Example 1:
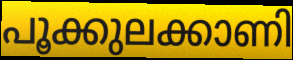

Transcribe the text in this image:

പൂക്കുലക്കാണി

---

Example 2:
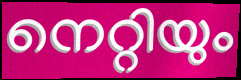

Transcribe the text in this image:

നെറ്റിയും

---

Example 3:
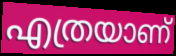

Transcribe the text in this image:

എത്രയാണ്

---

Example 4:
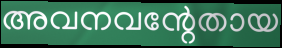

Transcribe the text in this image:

അവനവന്റേതായ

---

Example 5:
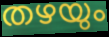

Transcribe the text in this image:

തഴയും